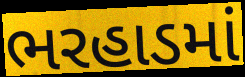
ભરહાડમાં